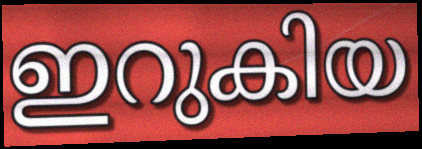
ഇറുകിയ